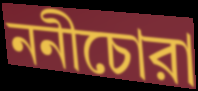
ননীচোরা